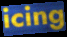
icing